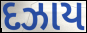
દઝાય